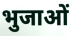
भुजाओं